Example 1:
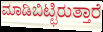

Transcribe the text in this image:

ಮಾಡಿಬಿಟ್ಟಿರುತ್ತಾರೆ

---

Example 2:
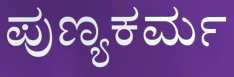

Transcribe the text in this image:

ಪುಣ್ಯಕರ್ಮ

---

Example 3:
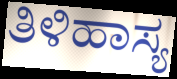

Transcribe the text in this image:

ತಿಳಿಹಾಸ್ಯ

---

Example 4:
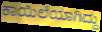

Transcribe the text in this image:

ಕಾಯಿಲೆಯಾಗಿದ್ದು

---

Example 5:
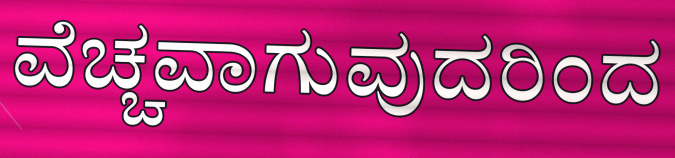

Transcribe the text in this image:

ವೆಚ್ಚವಾಗುವುದರಿಂದ